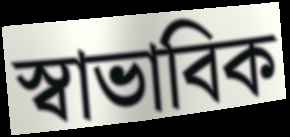
স্বাভাবিক